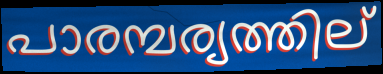
പാരമ്പര്യത്തില്